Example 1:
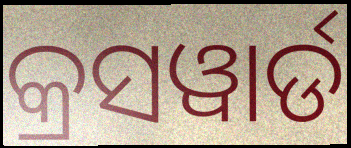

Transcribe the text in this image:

କ୍ରସୱାର୍ଡ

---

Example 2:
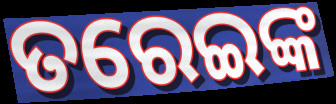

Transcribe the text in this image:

ତରେଇଙ୍କ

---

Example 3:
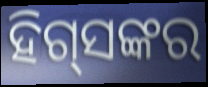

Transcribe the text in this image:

ହିଗ୍‌ସଙ୍କର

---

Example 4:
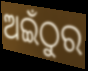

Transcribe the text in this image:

ଅଇଁଠୁର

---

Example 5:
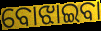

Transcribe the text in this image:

ବୋଝାଇବା